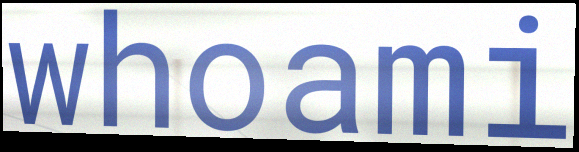
whoami